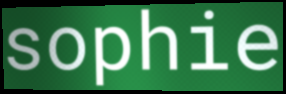
sophie